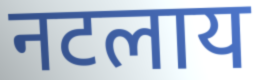
नटलाय